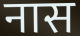
नास